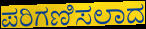
ಪರಿಗಣಿಸಲಾದ